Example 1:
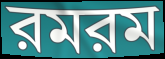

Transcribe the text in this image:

রমরম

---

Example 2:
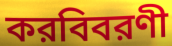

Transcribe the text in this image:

করবিবরণী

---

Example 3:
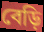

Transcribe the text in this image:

বেড়ি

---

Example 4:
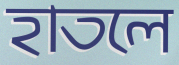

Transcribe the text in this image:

হাতলে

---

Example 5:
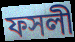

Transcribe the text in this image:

ফসলী